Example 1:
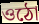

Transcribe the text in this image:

ওঠো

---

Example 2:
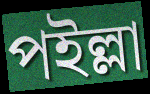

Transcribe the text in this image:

পইল্লা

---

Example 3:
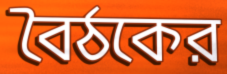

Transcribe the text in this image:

বৈঠকের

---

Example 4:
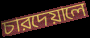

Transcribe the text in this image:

চারদেয়ালে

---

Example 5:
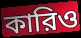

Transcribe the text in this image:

কারিও